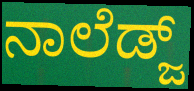
ನಾಲೆಡ್ಜ್